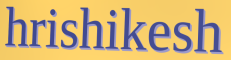
hrishikesh